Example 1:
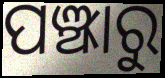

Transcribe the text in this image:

ପଞ୍ଝାରୁ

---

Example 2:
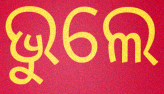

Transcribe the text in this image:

ଭୁଲେ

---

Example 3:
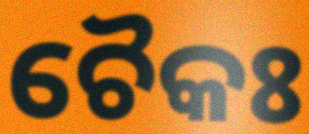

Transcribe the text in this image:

ଚୈକଃ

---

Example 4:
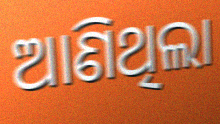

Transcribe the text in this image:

ଆଣିଥିଲା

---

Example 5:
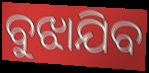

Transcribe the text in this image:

ବୁଝାଯିବ